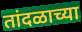
तांदळाच्या